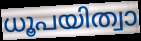
ധൂപയിത്വാ